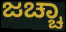
ಜಚ್ಚಾ